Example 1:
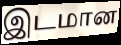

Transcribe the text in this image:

இடமான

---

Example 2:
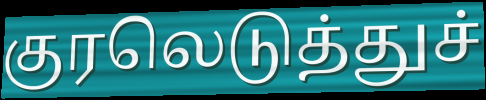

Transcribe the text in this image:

குரலெடுத்துச்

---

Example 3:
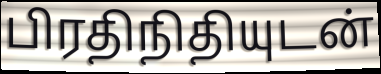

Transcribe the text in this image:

பிரதிநிதியுடன்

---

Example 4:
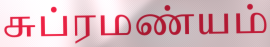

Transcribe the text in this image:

சுப்ரமண்யம்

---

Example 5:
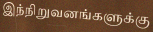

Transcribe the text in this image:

இந்நிறுவனங்களுக்கு